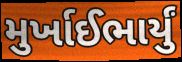
મુર્ખાઈભાર્યું